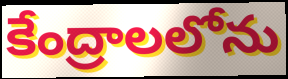
కేంద్రాలలోను